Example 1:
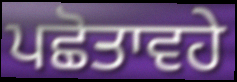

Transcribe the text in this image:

ਪਛੋਤਾਵਹੇ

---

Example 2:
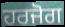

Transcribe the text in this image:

ਹਰਜੋਗ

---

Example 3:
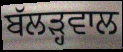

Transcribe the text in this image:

ਬੱਲੜ੍ਹਵਾਲ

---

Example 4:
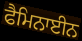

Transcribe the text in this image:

ਫੈਮਿਨਾਈਨ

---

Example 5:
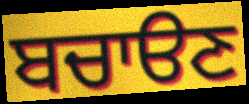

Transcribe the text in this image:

ਬਚਾੳਣ